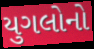
યુગલોનો